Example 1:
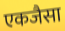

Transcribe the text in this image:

एकजैसा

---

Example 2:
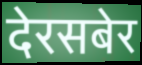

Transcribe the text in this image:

देरसबेर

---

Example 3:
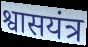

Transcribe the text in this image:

श्वासयंत्र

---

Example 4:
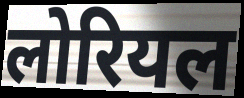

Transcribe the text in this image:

लोरियल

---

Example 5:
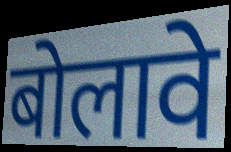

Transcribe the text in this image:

बोलावे